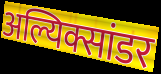
अल्यिक्सांडर